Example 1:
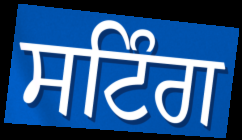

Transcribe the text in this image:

ਸਟਿੰਗ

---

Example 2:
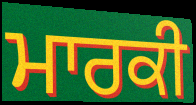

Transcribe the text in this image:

ਮਾਰਕੀ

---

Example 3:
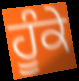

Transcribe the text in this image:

ਹੂੰਕੇ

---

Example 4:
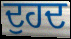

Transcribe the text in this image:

ਦੁਹਦ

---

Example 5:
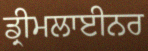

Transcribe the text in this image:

ਡ੍ਰੀਮਲਾਈਨਰ